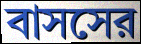
বাসসের